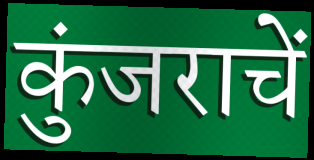
कुंजराचें